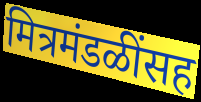
मित्रमंडळींसह